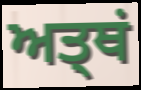
ਅਤ੍ਥਂ